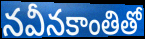
నవీనకాంతితో